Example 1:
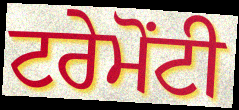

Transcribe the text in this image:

ਟਰੇਮੋਂਟੀ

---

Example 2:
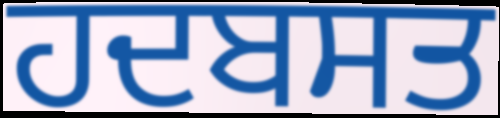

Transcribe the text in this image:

ਹਦਬਸਤ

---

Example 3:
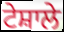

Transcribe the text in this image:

ਟੇਸ਼ਾਲੇ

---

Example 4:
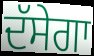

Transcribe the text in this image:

ਦੱਸੇਗਾ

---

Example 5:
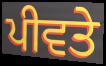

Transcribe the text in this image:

ਪੀਵਤੇ